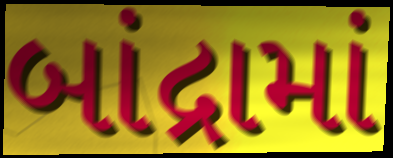
બાંદ્રામાં